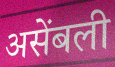
असेंबली